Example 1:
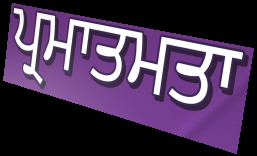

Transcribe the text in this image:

ਪ੍ਰਮਾਤਮਤਾ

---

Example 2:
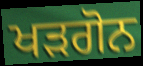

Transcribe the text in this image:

ਖੜਗੋਨ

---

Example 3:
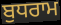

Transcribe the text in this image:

ਬੁਧਰਾਮ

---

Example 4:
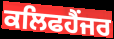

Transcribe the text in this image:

ਕਲਿਫਹੈਂਜਰ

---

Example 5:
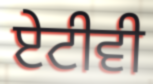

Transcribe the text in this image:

ਏਟੀਵੀ